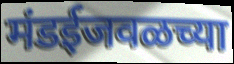
मंडईजवळच्या